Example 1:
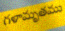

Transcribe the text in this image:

గళామృతము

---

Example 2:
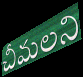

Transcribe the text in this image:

చీమలని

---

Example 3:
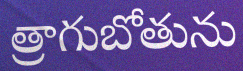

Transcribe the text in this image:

త్రాగుబోతును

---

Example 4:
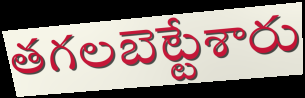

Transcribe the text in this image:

తగలబెట్టేశారు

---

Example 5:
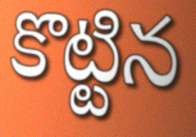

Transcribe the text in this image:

కొట్టిన